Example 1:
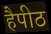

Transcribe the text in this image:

हैपीठ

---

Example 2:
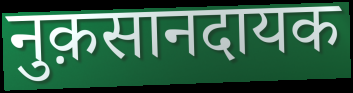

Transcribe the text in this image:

नुक़सानदायक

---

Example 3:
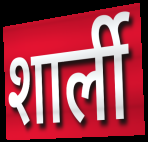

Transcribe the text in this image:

शार्ली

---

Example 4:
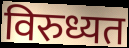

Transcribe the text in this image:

विरुध्यत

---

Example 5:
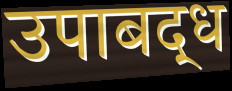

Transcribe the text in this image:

उपाबद्ध